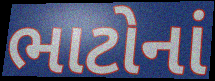
ભાટોનાં